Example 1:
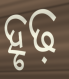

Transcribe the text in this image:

ହୃଢ଼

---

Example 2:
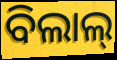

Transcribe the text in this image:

ବିଲାଲ୍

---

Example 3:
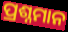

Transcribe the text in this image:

ପ୍ରଶ୍ନମାନ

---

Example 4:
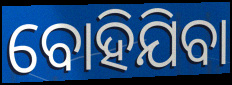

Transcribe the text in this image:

ବୋହିଯିବା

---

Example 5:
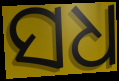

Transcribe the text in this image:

ସଧ